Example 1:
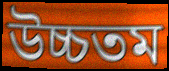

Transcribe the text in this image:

উচ্চতম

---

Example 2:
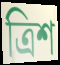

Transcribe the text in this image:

ত্রিশ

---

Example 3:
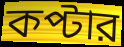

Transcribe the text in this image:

কপ্টার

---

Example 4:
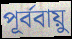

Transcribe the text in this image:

পূর্ববায়ু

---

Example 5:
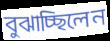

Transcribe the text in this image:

বুঝাচ্ছিলেন